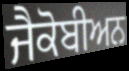
ਜੈਕੋਬੀਅਨ